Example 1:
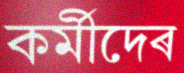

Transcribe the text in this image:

কৰ্মীদেৰ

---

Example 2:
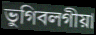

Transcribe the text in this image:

ভুগিবলগীয়া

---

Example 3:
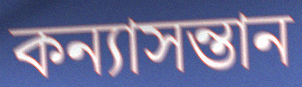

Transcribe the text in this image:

কন্যাসন্তান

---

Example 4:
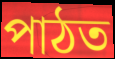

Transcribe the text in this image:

পাঠত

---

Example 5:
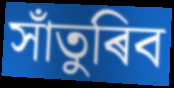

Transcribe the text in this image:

সাঁতুৰিব